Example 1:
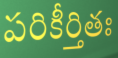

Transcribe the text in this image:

పరికీర్తితః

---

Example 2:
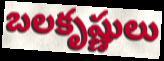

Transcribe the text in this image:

బలకృష్ణులు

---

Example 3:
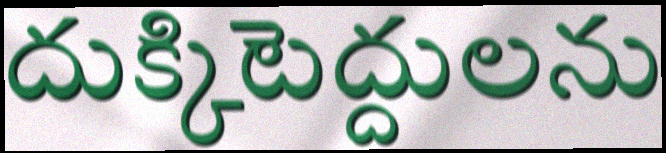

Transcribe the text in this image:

దుక్కిటెద్దులను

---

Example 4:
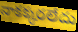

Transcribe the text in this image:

నాకక్కరలేదు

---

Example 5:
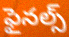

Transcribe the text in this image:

ఫైనల్స్